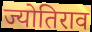
ज्योतिराव